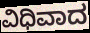
ವಿಧಿವಾದ